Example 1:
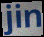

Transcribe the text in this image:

jin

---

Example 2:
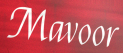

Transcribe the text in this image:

Mavoor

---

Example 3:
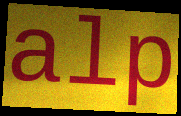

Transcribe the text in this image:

alp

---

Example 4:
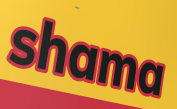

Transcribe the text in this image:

shama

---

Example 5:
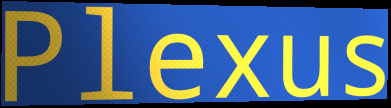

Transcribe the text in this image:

Plexus